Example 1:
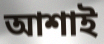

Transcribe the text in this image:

আশাই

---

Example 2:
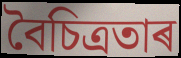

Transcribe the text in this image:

বৈচিত্ৰতাৰ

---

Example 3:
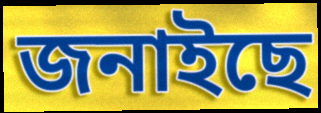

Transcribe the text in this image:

জনাইছে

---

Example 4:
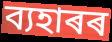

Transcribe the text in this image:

ব্যহাৰৰ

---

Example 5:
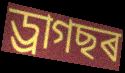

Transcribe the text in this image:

ড্ৰাগছৰ